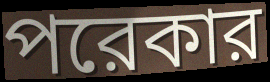
পরেকার